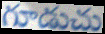
గూడుచు